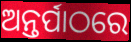
ଅନ୍ତର୍ପାଠରେ